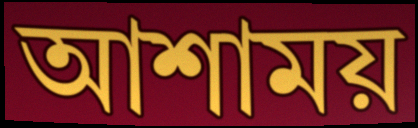
আশাময়